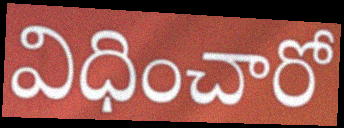
విధించారో